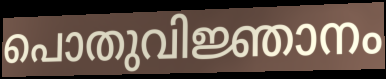
പൊതുവിജ്ഞാനം